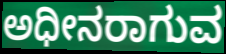
ಅಧೀನರಾಗುವ